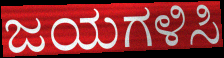
ಜಯಗಳಿಸಿ